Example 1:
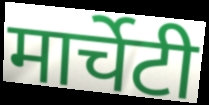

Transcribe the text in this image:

मार्चेटी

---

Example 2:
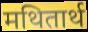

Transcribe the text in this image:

मथितार्थ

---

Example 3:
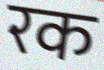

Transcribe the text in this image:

रक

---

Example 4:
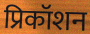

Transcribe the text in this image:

प्रिकॉशन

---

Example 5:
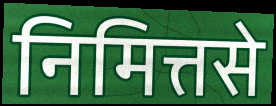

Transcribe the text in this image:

निमित्तसे